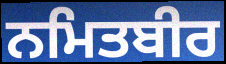
ਨਮਿਤਬੀਰ